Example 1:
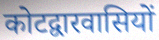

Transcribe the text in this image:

कोटद्वारवासियों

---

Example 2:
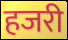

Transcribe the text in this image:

हजरी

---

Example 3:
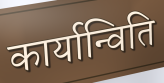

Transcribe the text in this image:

कार्यान्विति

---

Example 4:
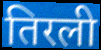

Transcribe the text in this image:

तिरली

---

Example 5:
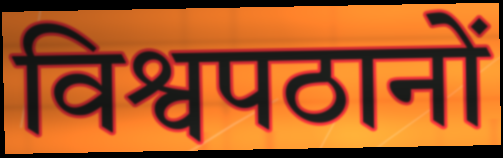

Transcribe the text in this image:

विश्वपठानों